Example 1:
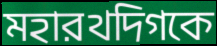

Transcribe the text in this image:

মহারথদিগকে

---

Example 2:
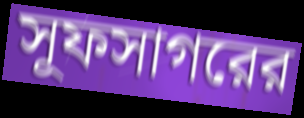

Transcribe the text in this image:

সূফসাগরের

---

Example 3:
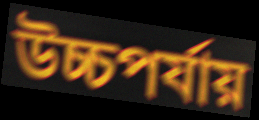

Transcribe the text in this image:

উচ্চপর্যায়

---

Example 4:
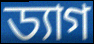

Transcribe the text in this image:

ড্যাগ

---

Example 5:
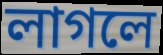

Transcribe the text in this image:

লাগলে